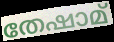
തേഷാമ്